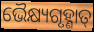
ଭୈକ୍ଷ୍ୟଗୃହ୍ଣାତ୍